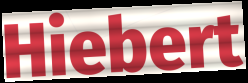
Hiebert